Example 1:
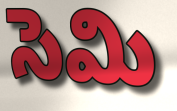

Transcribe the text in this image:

సెమి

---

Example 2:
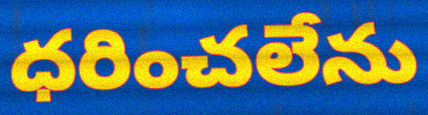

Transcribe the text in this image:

ధరించలేను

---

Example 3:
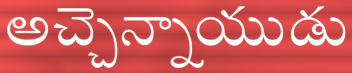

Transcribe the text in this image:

అచ్చెన్నాయుడు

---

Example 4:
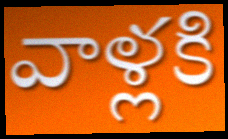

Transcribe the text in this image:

వాళ్లకి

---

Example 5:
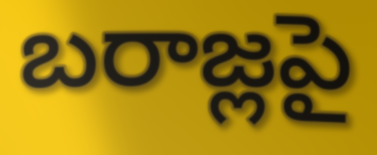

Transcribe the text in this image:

బరాజ్లపై